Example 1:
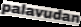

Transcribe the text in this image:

palavudan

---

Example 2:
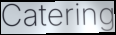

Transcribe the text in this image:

Catering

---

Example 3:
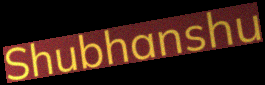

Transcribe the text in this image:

Shubhanshu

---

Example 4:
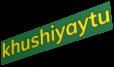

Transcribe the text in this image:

khushiyaytu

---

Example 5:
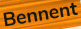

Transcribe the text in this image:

Bennent